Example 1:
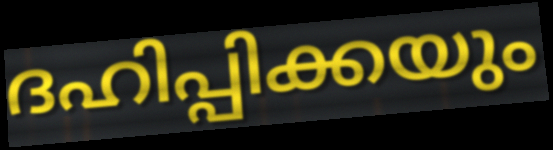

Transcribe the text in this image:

ദഹിപ്പിക്കയും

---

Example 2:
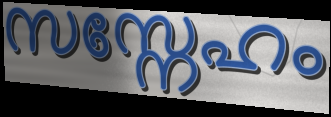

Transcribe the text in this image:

സസ്നേഹം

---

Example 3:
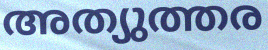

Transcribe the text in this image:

അത്യുത്തര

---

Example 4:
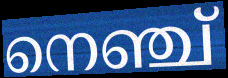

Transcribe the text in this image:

നെഞ്ച്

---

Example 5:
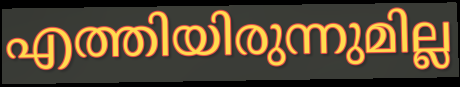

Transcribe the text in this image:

എത്തിയിരുന്നുമില്ല